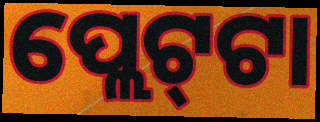
ପ୍ଲେଟ୍‍ଟା